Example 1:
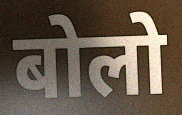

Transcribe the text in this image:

बोलो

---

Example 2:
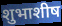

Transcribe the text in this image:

शुभाशीष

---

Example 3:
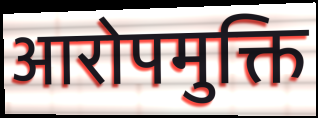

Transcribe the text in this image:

आरोपमुक्ति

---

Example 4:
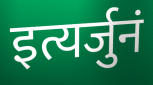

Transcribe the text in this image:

इत्यर्जुनं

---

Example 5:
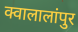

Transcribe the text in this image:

क्वालालांपुर